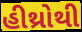
હીથ્રોથી